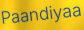
Paandiyaa